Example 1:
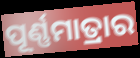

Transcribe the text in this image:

ପୂର୍ଣ୍ଣମାତ୍ରାର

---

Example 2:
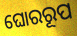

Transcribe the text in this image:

ଘୋରରୂପ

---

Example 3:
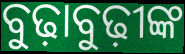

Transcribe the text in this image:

ବୁଢ଼ାବୁଢ଼ୀଙ୍କ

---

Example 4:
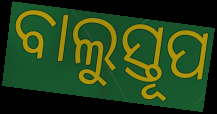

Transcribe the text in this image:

ବାଲୁସ୍ତୂପ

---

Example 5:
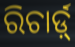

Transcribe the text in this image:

ରିଚାର୍ଡ଼୍